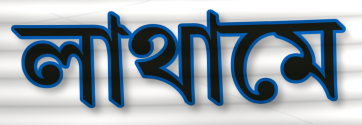
লাথামে